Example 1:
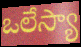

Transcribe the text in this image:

ఒలేస్యా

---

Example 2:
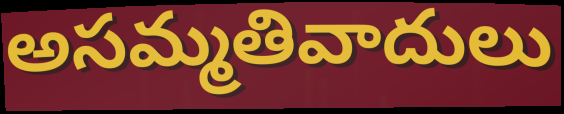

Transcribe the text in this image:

అసమ్మతివాదులు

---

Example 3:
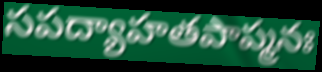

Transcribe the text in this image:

సపద్యాహతపాప్మనః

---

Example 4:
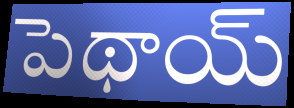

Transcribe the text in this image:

పెథాయ్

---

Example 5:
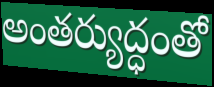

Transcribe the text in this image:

అంతర్యుద్ధంతో